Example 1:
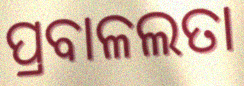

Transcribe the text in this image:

ପ୍ରବାଳଲତା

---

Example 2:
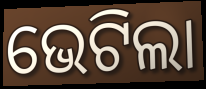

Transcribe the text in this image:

ଭେଟିଲା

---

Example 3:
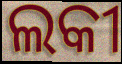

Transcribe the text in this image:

ଲକୀ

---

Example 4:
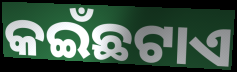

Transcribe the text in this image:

କଇଁଛଟାଏ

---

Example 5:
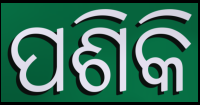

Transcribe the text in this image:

ପଶିକି